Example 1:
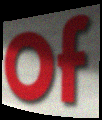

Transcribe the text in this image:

Of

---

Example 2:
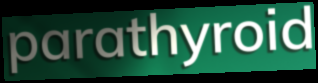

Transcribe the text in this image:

parathyroid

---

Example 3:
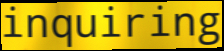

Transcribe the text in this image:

inquiring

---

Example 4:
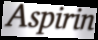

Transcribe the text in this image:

Aspirin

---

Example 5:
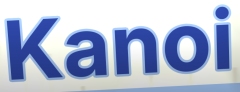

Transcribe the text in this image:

Kanoi